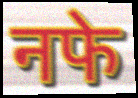
नफे